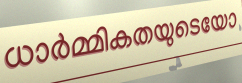
ധാർമ്മികതയുടെയോ